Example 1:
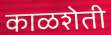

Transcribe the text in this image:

काळशेती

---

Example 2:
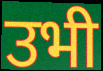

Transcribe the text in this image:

उभी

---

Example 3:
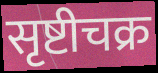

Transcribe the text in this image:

सृष्टीचक्र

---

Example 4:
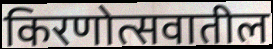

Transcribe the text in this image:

किरणोत्सवातील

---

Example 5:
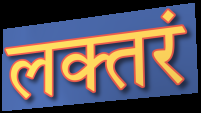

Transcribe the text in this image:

लक्तरं